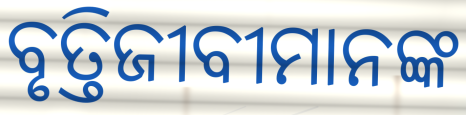
ବୃତ୍ତିଜୀବୀମାନଙ୍କ